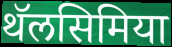
थॅलसिमिया